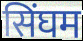
सिंघम